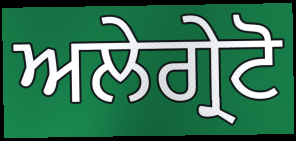
ਅਲੇਗ੍ਰੇਟੋ